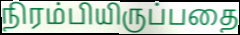
நிரம்பியிருப்பதை